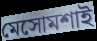
মেসোমশাই